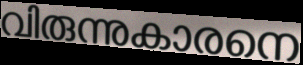
വിരുന്നുകാരനെ